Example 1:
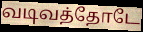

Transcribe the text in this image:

வடிவத்தோடே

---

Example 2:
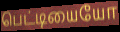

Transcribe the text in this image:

பெட்டியையோ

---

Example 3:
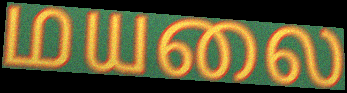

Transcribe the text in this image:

மயலை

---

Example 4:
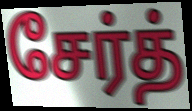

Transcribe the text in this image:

சேர்த்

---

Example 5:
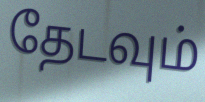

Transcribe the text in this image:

தேடவும்